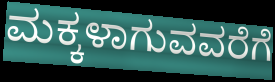
ಮಕ್ಕಳಾಗುವವರೆಗೆ